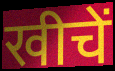
खीचें